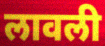
लावली